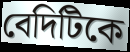
বেদিটিকে